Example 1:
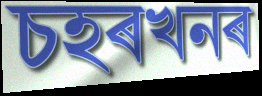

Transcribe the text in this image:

চহৰখনৰ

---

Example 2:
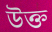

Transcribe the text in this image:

উক্ত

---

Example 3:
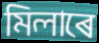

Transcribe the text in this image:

মিলাৰে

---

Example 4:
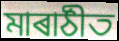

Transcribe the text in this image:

মাৰাঠীত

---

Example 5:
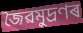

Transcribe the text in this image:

জৈৱমুদ্ৰণৰ